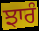
ਝਾਰੰ